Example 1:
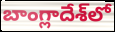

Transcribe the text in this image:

బాంగ్లాదేశ్‌లో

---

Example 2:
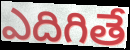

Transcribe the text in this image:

ఎదిగితే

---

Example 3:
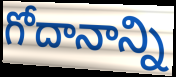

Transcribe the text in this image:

గోదానాన్ని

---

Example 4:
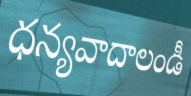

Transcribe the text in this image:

ధన్యవాదాలండీ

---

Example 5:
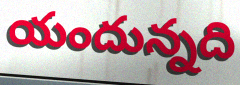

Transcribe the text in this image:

యందున్నది